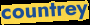
countrey